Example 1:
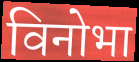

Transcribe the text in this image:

विनोभा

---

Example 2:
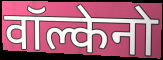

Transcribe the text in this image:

वॉल्केनो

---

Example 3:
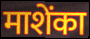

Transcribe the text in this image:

माशेंका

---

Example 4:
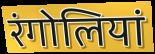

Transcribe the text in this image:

रंगोलियां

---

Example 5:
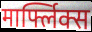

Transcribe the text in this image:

मार्फ्लिक्स